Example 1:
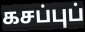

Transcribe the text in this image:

கசப்புப்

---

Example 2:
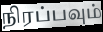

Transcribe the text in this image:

நிரப்பவும்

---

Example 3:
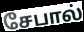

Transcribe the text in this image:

சேபால்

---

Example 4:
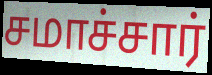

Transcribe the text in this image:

சமாச்சார்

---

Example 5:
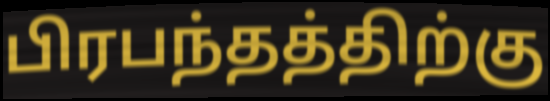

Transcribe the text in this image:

பிரபந்தத்திற்கு